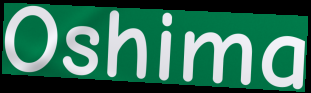
Oshima